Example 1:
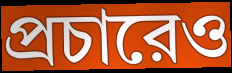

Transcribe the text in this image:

প্রচারেও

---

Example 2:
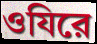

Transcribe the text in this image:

ওযিরে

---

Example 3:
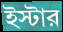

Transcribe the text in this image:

ইস্টার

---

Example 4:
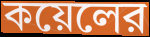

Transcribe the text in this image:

কয়েলের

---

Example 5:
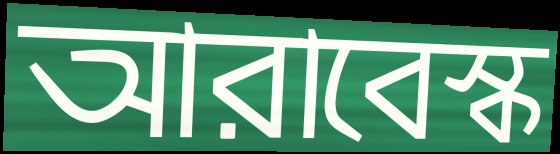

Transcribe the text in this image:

আরাবেস্ক